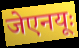
जेएनयूः